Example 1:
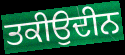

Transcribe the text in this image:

ਤਕੀਉਦੀਨ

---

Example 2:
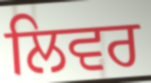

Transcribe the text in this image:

ਲਿਵਰ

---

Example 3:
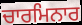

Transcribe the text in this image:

ਚਾਰਮਿਨਾਰ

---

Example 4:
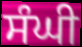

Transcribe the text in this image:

ਸੰਘੀ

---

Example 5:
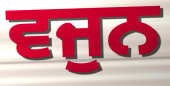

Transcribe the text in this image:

ਵਜੁਨ